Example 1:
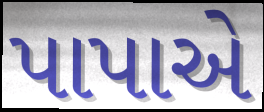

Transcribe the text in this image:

પાપાએ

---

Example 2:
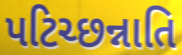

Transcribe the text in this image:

પટિચ્છન્નાતિ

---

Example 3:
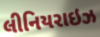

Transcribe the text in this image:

લીનિયરાઇઝ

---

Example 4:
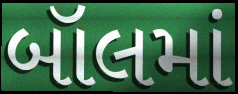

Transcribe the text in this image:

બૉલમાં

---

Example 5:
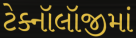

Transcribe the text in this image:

ટેક્નૉલૉજીમાં